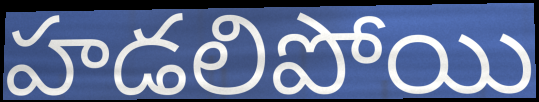
హడలిపోయి